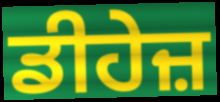
ਡੀਹੇਜ਼